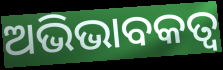
ଅଭିଭାବକତ୍ବ